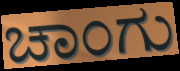
ಚಾಂಗು